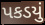
પકડયું